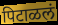
पिटाळलं